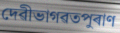
দেৱীভাগৱতপুৰাণ